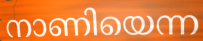
നാണിയെന്ന